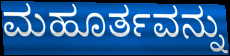
ಮಹೂರ್ತವನ್ನು